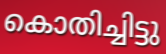
കൊതിച്ചിട്ടു